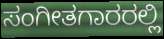
ಸಂಗೀತಗಾರರಲ್ಲಿ